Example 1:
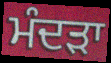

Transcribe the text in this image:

ਮੰਦੜਾ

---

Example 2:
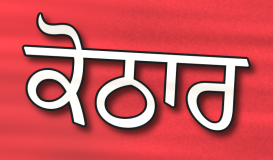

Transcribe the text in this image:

ਕੋਠਾਰ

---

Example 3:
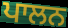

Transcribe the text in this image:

ਪਾਲਨ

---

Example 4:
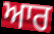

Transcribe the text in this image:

ਆਰ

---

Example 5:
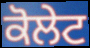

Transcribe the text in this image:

ਕੋਲੇਟ